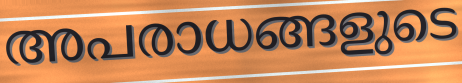
അപരാധങ്ങളുടെ